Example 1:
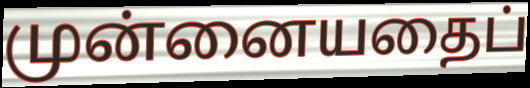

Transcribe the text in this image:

முன்னையதைப்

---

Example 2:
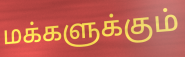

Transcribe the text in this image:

மக்களுக்கும்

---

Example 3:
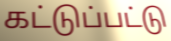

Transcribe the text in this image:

கட்டுப்பட்டு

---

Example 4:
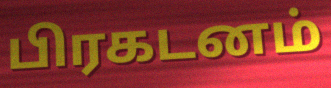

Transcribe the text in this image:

பிரகடனம்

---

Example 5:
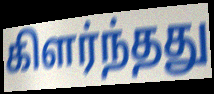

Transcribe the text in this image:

கிளர்ந்தது